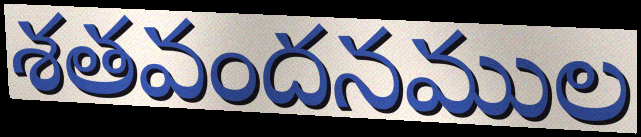
శతవందనముల